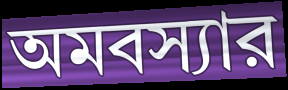
অমবস্যার